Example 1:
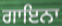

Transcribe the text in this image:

ਗਾਇਨਾ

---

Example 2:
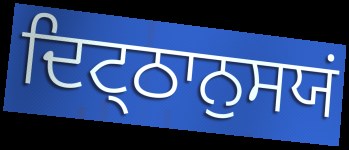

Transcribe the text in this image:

ਦਿਟ੍ਠਾਨੁਸਯਂ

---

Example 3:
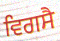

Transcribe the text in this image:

ਵਿਗਸੈ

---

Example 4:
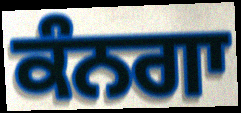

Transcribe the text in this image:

ਕੰਨਗਾ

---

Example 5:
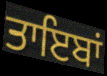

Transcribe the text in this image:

ਤਾਇਬਾਂ